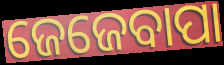
ଜେଜେବାପା